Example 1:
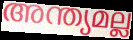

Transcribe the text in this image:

അന്ത്യമല്ല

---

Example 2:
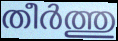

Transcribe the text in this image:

തീർത്തു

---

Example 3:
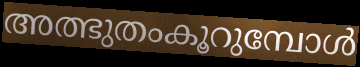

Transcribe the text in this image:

അത്ഭുതംകൂറുമ്പോൾ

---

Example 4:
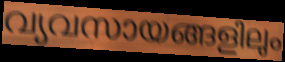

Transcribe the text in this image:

വ്യവസായങ്ങളിലും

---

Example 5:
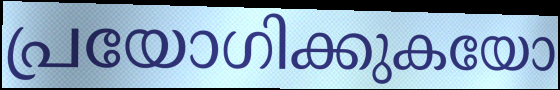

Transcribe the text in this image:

പ്രയോഗിക്കുകയോ